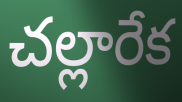
చల్లారేక